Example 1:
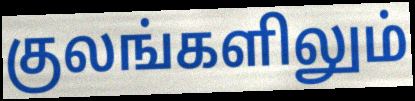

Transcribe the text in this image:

குலங்களிலும்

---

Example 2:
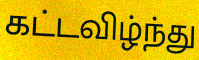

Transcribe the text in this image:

கட்டவிழ்ந்து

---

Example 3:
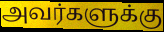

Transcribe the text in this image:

அவர்களுக்கு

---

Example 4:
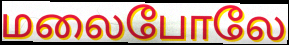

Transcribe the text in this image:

மலைபோலே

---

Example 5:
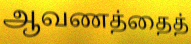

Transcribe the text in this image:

ஆவணத்தைத்